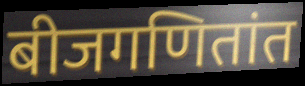
बीजगणितांत